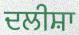
ਦਲੀਸ਼ਾ